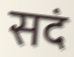
सदं